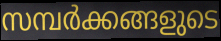
സമ്പർക്കങ്ങളുടെ